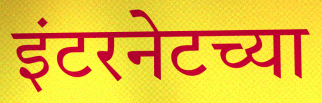
इंटरनेटच्या